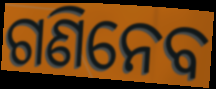
ଗଣିନେବ